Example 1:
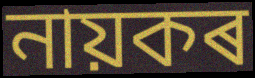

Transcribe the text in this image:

নায়কৰ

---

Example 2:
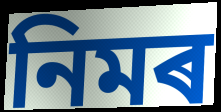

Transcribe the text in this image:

নিমৰ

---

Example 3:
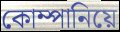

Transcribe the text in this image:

কোম্পানিয়ে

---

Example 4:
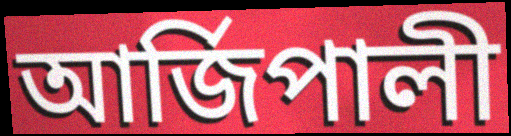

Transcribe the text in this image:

আৰ্জিপালী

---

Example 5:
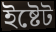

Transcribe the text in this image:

ইষ্টেট